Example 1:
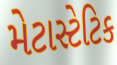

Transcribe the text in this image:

મેટાસ્ટેટિક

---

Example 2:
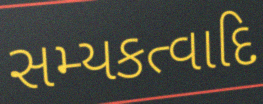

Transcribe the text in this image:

સમ્યકત્વાદિ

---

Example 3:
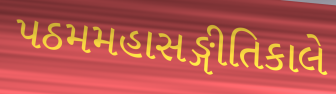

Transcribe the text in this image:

પઠમમહાસઙ્ગીતિકાલે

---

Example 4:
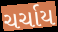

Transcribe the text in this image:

ચર્ચાય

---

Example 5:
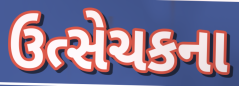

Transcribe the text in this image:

ઉત્સેચકના